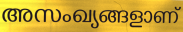
അസംഖ്യങ്ങളാണ്